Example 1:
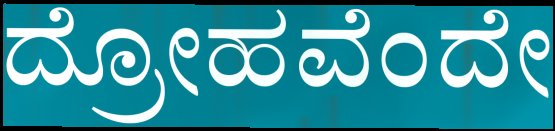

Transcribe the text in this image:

ದ್ರೋಹವೆಂದೇ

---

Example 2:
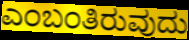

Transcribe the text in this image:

ಎಂಬಂತಿರುವುದು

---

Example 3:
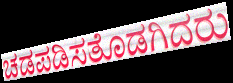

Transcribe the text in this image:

ಚಡಪಡಿಸತೊಡಗಿದರು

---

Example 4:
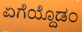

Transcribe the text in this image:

ಏಗೆಯ್ದೊಡಂ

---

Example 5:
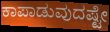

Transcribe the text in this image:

ಕಾಪಾಡುವುದಷ್ಟೇ